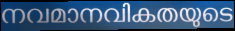
നവമാനവികതയുടെ